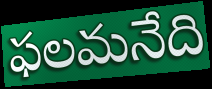
ఫలమనేది